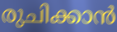
രുചിക്കാൻ